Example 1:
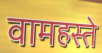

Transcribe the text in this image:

वामहस्ते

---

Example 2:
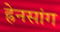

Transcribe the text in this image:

ह्रेनसांग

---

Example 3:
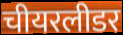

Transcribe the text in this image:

चीयरलीडर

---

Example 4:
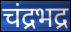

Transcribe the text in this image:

चंद्रभद्र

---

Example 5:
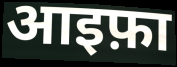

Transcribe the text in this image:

आइफ़ा